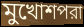
মুখোশপরা